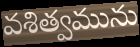
వశిత్వమును